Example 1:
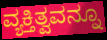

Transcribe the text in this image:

ವ್ಯಕ್ತಿತ್ವವನ್ನೂ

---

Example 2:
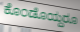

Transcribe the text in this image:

ಕೊಂಡೊಯ್ದರೂ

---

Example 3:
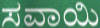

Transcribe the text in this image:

ಸವಾಯಿ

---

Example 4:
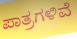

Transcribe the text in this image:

ಪಾತ್ರಗಳಿವೆ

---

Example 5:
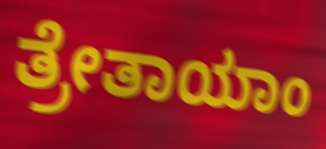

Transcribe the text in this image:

ತ್ರೇತಾಯಾಂ